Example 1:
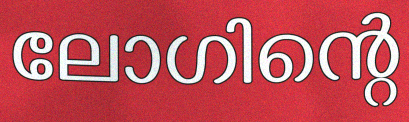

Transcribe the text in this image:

ലോഗിന്റെ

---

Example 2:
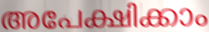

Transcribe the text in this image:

അപേക്ഷിക്കാം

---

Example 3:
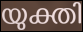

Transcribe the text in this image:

യുക്തി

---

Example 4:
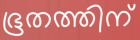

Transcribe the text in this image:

ഭൂതത്തിന്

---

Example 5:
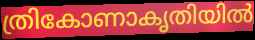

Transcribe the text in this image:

ത്രികോണാകൃതിയിൽ